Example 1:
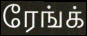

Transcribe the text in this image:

ரேங்க்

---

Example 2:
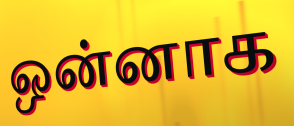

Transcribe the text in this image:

ஒன்னாக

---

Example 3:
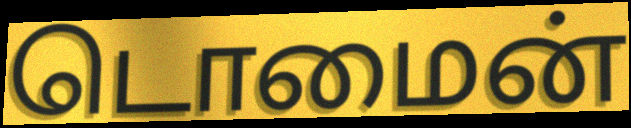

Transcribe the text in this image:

டொமைன்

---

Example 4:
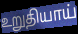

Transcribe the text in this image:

உறுதியாய்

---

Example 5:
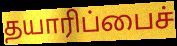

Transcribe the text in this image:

தயாரிப்பைச்